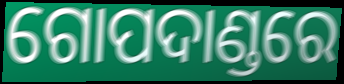
ଗୋପଦାଣ୍ଡରେ